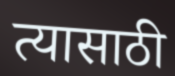
त्यासाठी